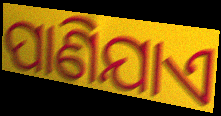
ପାଣିଯାଏ